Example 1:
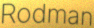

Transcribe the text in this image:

Rodman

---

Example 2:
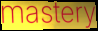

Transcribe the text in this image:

mastery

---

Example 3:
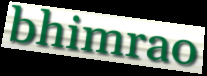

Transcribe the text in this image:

bhimrao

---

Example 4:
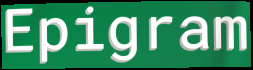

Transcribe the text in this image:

Epigram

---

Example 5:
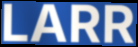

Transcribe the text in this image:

LARR